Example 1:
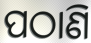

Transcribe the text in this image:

ପଠାଣି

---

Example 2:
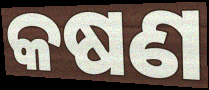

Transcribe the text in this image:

କଷଣ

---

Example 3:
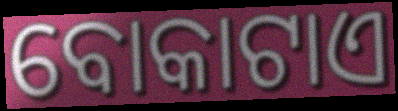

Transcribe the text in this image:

ବୋକାଟାଏ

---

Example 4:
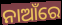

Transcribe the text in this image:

ନାଆଁରେ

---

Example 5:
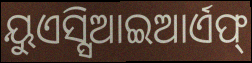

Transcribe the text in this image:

ୟୁଏସ୍ସିଆଇଆର୍ଏଫ୍